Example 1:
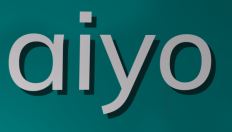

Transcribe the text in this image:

aiyo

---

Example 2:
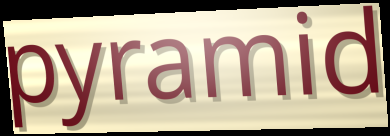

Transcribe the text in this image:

pyramid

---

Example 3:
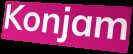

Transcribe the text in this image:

Konjam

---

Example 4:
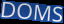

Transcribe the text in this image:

DOMS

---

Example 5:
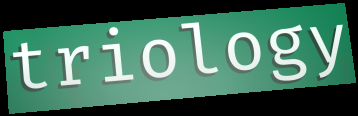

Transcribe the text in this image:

triology